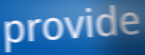
provide